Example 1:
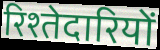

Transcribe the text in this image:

रिश्तेदारियों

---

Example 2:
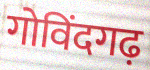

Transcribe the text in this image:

गोविंदगढ़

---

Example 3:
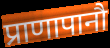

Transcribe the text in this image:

प्राणापानौ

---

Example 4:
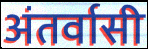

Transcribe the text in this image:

अंतर्वासी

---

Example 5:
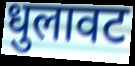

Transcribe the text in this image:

धुलावट